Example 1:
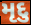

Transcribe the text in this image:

મૃદુ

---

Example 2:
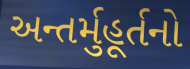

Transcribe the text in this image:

અન્તર્મુહૂર્તનો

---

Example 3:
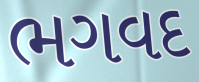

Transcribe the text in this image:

ભગવદ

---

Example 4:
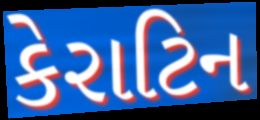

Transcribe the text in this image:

કેરાટિન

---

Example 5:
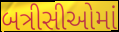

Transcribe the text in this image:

બત્રીસીઓમાં